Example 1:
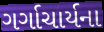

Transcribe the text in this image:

ગર્ગાચાર્યના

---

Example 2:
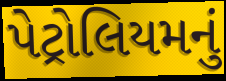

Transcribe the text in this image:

પેટ્રોલિયમનું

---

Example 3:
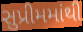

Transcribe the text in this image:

સુપ્રીમમાંથી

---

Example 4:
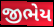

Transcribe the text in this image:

જીભેય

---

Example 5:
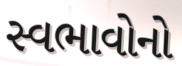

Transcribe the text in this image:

સ્વભાવોનો